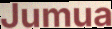
Jumua